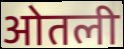
ओतली